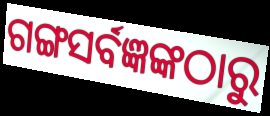
ଗଙ୍ଗସର୍ବଜ୍ଞଙ୍କଠାରୁ